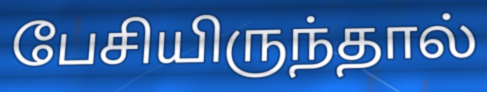
பேசியிருந்தால்